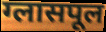
ग्लासपूल